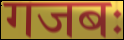
गजबः